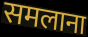
समलाना